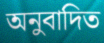
অনুবাদিত